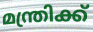
മന്ത്രിക്ക്